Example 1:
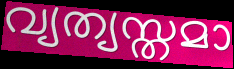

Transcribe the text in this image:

വ്യത്യസ്തമാ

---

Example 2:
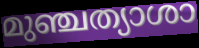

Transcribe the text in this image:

മുഞ്ചത്യാശാ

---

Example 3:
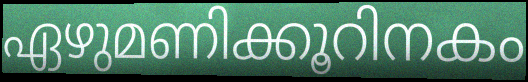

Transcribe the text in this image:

ഏഴുമണിക്കൂറിനകം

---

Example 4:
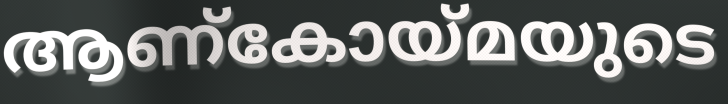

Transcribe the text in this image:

ആണ്കോയ്മയുടെ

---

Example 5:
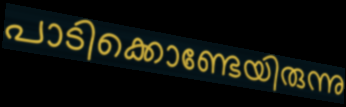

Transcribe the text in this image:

പാടിക്കൊണ്ടേയിരുന്നു